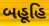
બહૂહિ